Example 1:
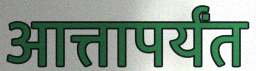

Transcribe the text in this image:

आत्तापर्यंत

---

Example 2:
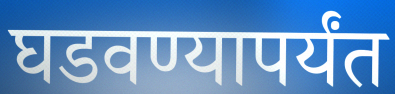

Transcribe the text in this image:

घडवण्यापर्यंत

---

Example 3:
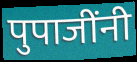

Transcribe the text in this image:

पुपाजींनी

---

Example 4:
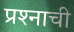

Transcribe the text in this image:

प्रश्‍नाची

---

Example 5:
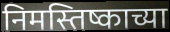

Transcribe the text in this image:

निमस्तिष्काच्या